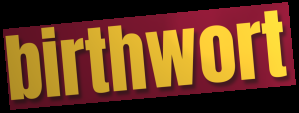
birthwort